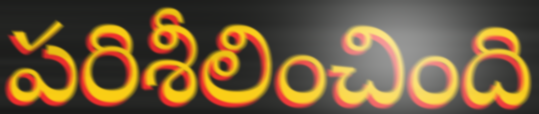
పరిశీలించింది